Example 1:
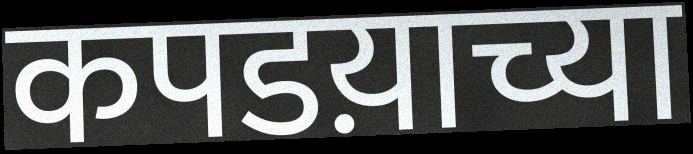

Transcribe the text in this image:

कपडय़ाच्या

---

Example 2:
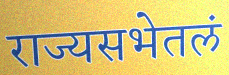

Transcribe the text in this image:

राज्यसभेतलं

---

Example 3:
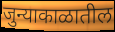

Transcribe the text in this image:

जुन्याकाळातील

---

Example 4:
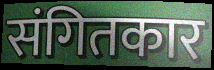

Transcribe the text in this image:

संगितकार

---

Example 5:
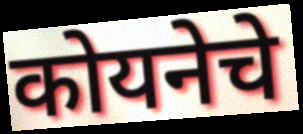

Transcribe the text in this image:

कोयनेचे